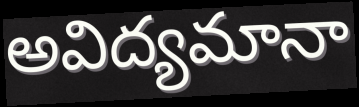
అవిద్యమానా